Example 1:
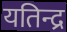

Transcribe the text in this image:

यतिन्द्र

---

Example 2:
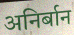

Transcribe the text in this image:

अनिर्बान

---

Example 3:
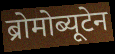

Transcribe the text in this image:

ब्रोमोब्यूटेन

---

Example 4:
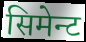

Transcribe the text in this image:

सिमेन्ट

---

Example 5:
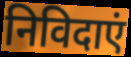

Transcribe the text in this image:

निविदाएं